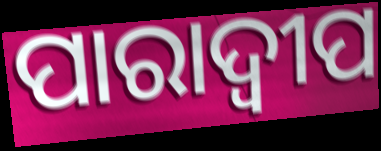
ପାରାଦ୍ୱୀପ